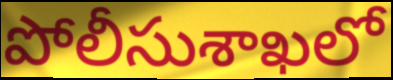
పోలీసుశాఖలో